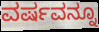
ವರ್ಷವನ್ನೂ